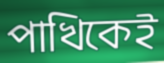
পাখিকেই